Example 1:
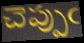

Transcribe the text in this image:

చెప్పుఁ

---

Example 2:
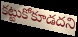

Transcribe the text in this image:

కట్టుకోకూడదని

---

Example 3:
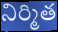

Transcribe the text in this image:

నిర్మిత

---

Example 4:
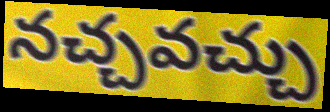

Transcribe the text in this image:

నచ్చవచ్చు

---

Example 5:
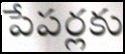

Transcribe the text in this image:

పేపర్లకు